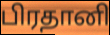
பிரதானி